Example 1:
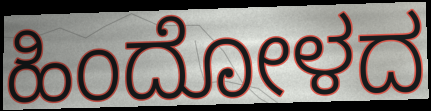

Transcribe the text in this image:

ಹಿಂದೋಳದ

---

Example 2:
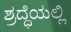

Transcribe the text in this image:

ಶ್ರದ್ಧೆಯಲ್ಲಿ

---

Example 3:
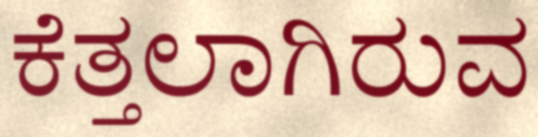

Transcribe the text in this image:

ಕೆತ್ತಲಾಗಿರುವ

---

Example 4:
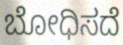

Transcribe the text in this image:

ಬೋಧಿಸದೆ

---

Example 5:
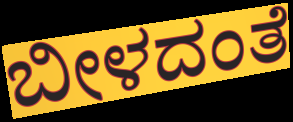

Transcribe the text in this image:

ಬೀಳದಂತೆ